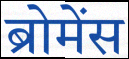
ब्रोमेंस